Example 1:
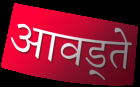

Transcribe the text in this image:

आवड्ते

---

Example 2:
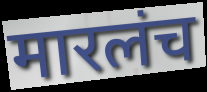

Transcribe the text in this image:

मारलंच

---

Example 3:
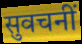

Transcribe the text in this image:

सुवचनीं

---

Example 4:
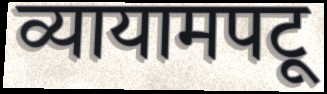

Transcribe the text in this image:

व्यायामपटू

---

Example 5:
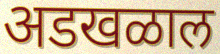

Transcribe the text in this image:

अडखळाल